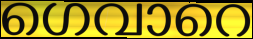
ഗെവാറെ